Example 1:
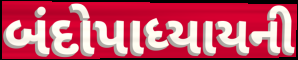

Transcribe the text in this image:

બંદોપાધ્યાયની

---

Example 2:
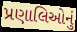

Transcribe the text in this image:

પ્રણાલિઓનું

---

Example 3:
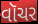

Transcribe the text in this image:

વૉચર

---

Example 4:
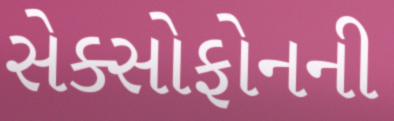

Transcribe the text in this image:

સેક્સોફોનની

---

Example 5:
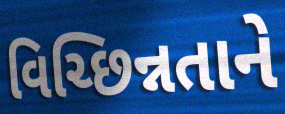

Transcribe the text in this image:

વિચ્છિન્નતાને